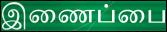
இணைப்பை